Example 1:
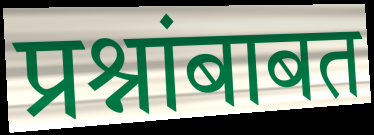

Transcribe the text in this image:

प्रश्नांबाबत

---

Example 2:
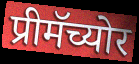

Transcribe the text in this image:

प्रीमॅच्योर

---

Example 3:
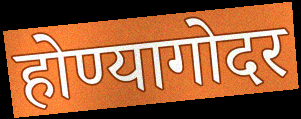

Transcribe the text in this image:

होण्यागोदर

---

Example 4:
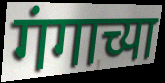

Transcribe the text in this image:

गंगाच्या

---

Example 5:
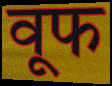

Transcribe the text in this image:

वूफ